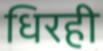
धिरही